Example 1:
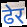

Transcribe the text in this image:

ढेर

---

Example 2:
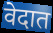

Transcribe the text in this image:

वेदात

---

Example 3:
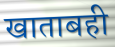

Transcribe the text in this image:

खाताबही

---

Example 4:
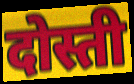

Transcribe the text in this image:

दोस्ती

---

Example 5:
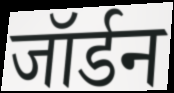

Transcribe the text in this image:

जॉर्डन